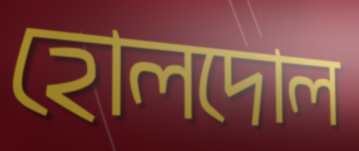
হোলদোল